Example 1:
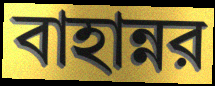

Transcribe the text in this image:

বাহান্নর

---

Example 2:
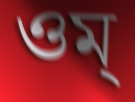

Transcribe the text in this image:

ওম্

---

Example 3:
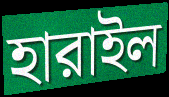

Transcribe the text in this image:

হারাইল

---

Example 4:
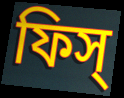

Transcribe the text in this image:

ফিস্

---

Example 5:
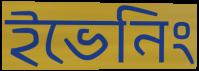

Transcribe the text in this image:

ইভেনিং